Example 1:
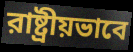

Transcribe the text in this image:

রাষ্ট্রীয়ভাবে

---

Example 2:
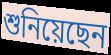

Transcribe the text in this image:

শুনিয়েছেন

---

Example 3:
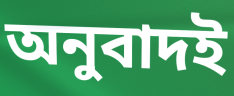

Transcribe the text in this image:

অনুবাদই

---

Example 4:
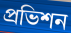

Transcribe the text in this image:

প্রভিশন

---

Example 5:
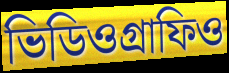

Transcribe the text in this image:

ভিডিওগ্রাফিও